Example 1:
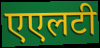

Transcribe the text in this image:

एएलटी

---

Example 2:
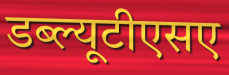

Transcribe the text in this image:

डब्ल्यूटीएसए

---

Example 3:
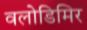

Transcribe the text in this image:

वलोडिमिर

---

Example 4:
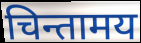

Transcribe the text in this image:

चिन्तामय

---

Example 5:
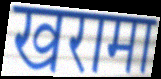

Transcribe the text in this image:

खरामा